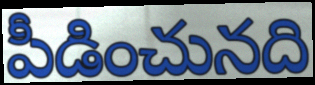
పీడించునది